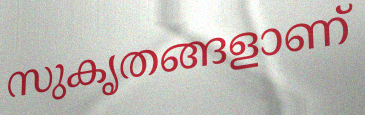
സുകൃതങ്ങളാണ്